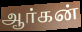
ஆர்கன்